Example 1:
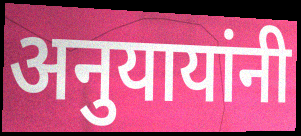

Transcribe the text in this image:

अनुयायांनी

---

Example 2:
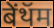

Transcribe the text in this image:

बेंथॅम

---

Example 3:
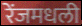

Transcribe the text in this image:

रेंजमधली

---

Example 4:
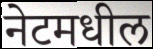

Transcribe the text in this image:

नेटमधील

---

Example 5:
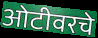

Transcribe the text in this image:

ओटीवरचे